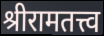
श्रीरामतत्त्व